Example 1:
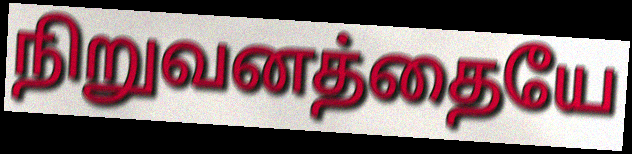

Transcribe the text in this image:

நிறுவனத்தையே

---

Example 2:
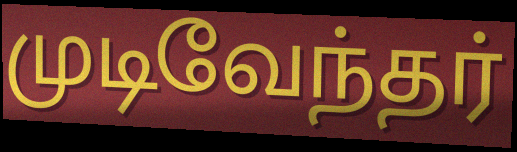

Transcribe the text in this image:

முடிவேந்தர்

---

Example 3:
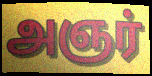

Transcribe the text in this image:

அஞர்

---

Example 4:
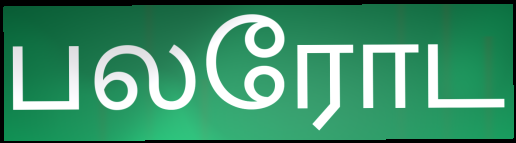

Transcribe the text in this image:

பலரோட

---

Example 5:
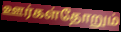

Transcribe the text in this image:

ஊர்கள்தோறும்